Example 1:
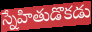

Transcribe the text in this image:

స్నేహితుడొకడు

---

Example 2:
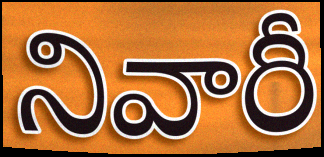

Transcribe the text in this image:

నివారీ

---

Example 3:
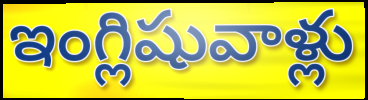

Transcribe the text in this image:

ఇంగ్లిషువాళ్లు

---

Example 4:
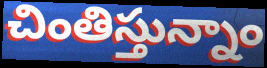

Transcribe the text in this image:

చింతిస్తున్నాం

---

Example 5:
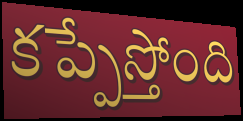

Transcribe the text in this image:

కప్పేస్తోంది